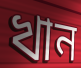
খান